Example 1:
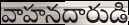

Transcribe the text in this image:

వాహనదారుడి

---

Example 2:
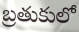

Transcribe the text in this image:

బ్రతుకులో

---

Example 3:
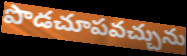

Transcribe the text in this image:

పొడచూపవచ్చును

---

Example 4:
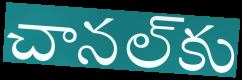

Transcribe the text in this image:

చానల్‌కు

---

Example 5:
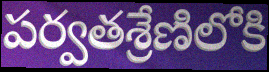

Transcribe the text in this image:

పర్వతశ్రేణిలోకి